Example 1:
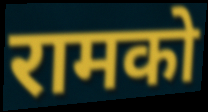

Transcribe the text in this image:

रामको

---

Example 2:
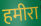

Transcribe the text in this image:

हमीरा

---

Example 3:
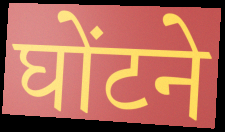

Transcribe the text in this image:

घोंटने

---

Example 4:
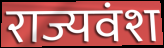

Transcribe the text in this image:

राज्यवंश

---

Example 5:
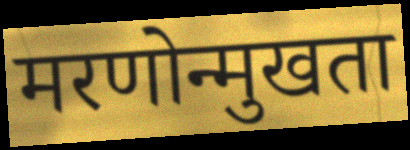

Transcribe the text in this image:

मरणोन्मुखता